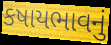
કષાયભાવનું